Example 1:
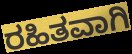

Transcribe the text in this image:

ರಹಿತವಾಗಿ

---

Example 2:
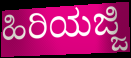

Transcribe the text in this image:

ಹಿರಿಯಜ್ಜಿ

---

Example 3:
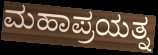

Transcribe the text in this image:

ಮಹಾಪ್ರಯತ್ನ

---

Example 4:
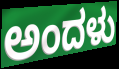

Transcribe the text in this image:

ಅಂದಳು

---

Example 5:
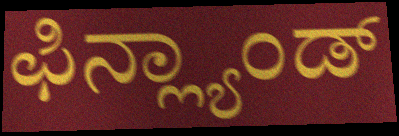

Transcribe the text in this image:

ಫಿನ್ಲ್ಯಾಂಡ್